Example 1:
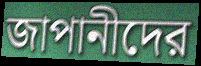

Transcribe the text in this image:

জাপানীদের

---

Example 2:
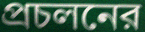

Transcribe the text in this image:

প্রচলনের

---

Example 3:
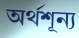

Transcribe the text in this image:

অর্থশূন্য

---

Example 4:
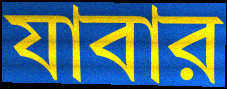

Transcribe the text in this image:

যাবার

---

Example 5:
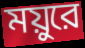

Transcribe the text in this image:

ময়ুরে